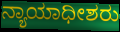
ನ್ಯಾಯಾಧೀಶರು